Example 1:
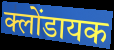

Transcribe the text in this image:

क्लोंडायक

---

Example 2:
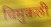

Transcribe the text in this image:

चिमुकली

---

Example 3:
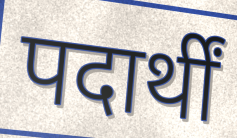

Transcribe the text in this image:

पदार्थीं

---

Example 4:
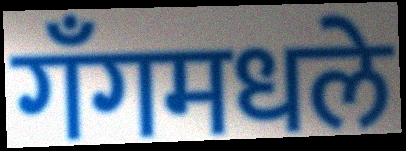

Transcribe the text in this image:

गँगमधले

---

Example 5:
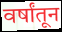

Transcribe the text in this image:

वर्षांतून